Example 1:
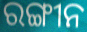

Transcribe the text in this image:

ରଙ୍ଗୀନ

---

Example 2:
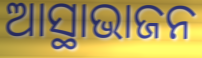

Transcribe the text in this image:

ଆସ୍ଥାଭାଜନ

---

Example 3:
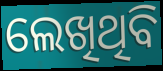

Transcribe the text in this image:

ଲେଖିଥିବି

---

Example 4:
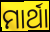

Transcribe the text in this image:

ମାର୍ଥା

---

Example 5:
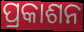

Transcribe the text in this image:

ପ୍ରକାଶନ